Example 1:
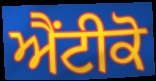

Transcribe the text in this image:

ਐਂਟੀਕੋ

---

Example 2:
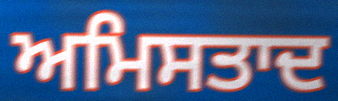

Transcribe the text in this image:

ਅਮਿਸਤਾਦ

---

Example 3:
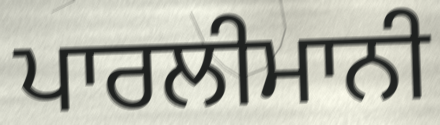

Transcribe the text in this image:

ਪਾਰਲੀਮਾਨੀ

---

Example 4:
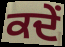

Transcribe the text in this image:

ਕਦੇਂ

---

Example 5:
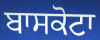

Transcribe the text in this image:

ਬਾਸਕੋਟਾ